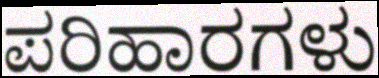
ಪರಿಹಾರಗಳು